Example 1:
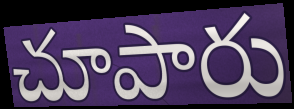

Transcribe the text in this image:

చూపారు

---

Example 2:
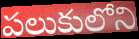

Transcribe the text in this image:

పలుకులోని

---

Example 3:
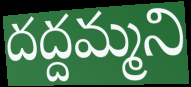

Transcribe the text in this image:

దద్దమ్మని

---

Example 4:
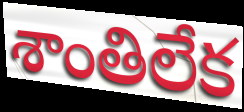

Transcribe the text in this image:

శాంతిలేక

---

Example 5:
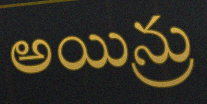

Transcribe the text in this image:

అయిన్రు